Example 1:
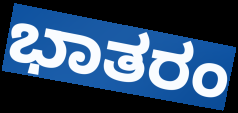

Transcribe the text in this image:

ಭಾತರಂ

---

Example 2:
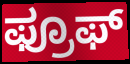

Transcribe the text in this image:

ಫ್ರೂಫ್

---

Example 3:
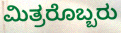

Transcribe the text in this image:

ಮಿತ್ರರೊಬ್ಬರು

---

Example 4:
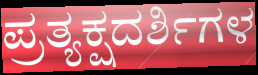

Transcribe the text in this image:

ಪ್ರತ್ಯಕ್ಷದರ್ಶಿಗಳ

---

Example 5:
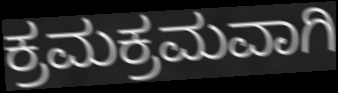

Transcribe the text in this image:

ಕ್ರಮಕ್ರಮವಾಗಿ